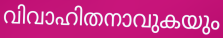
വിവാഹിതനാവുകയും